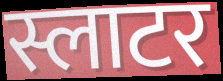
स्लाटर